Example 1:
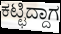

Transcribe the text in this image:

ಕಟ್ಟಿದ್ದಾಗ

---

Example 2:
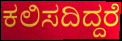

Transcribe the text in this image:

ಕಲಿಸದಿದ್ದರೆ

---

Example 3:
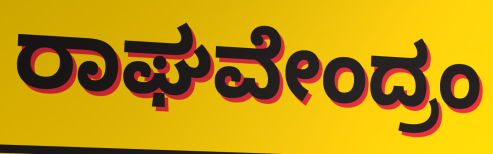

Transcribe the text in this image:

ರಾಘವೇಂದ್ರಂ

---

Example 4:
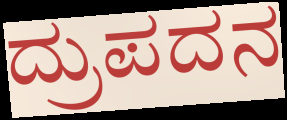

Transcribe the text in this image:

ದ್ರುಪದನ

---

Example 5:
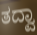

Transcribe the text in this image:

ತದ್ವಾ